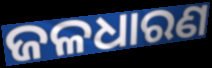
ଜଳଧାରଣ